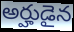
అర్హుడైన